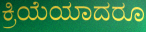
ಕ್ರಿಯೆಯಾದರೂ